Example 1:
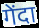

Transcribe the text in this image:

गेंदा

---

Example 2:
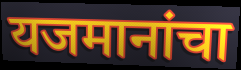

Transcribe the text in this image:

यजमानांचा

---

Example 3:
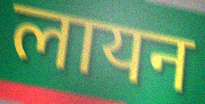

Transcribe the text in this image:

लायन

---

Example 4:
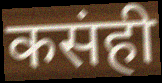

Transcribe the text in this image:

कसंही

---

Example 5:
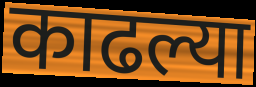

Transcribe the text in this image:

काढल्या